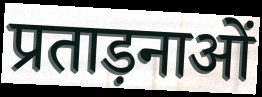
प्रताड़नाओं